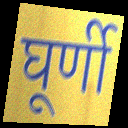
घूर्णी